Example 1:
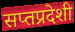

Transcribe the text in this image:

सप्तप्रदेशी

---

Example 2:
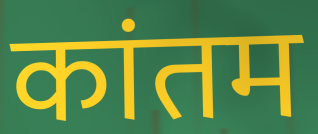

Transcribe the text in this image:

कांतम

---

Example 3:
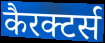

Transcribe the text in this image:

कैरक्टर्स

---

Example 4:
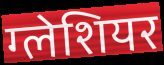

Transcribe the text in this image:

ग्लेशियर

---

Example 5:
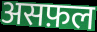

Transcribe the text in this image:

असफ़ल